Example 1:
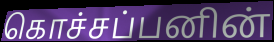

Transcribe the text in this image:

கொச்சப்பனின்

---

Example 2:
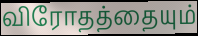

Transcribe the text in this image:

விரோதத்தையும்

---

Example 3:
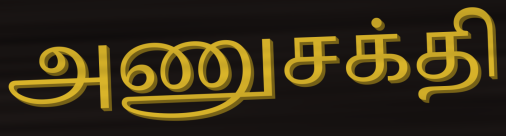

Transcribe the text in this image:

அணுசக்தி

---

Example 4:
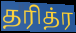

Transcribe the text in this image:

தரித்ர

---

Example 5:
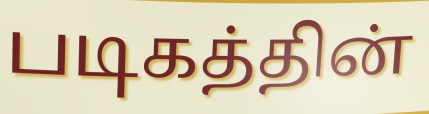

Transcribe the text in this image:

படிகத்தின்